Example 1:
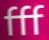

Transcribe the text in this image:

fff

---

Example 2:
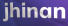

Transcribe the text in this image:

jhinan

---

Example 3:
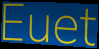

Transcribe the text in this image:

Euet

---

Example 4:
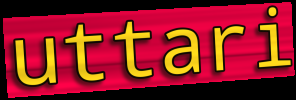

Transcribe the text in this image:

uttari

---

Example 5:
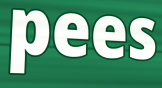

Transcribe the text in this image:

pees